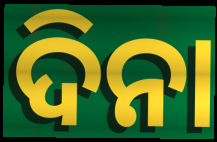
ଦିନା